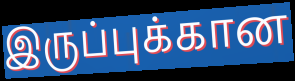
இருப்புக்கான